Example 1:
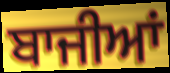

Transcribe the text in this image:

ਬਾਜੀਆਂ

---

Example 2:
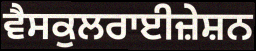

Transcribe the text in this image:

ਵੈਸਕੁਲਰਾਈਜ਼ੇਸ਼ਨ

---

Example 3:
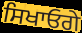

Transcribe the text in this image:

ਸਿਖਾਓਗੇ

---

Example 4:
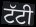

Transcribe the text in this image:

ਟੱਟੀ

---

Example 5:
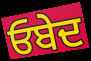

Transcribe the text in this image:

ਓਬੇਦ